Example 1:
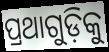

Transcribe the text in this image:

ପ୍ରଥାଗୁଡ଼ିକୁ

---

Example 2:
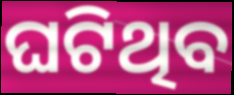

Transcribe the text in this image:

ଘଟିଥିବ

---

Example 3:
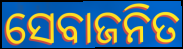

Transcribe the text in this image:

ସେବାଜନିତ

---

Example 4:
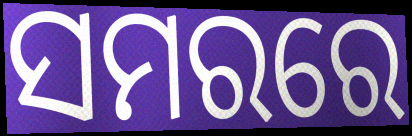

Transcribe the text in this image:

ସମରରେ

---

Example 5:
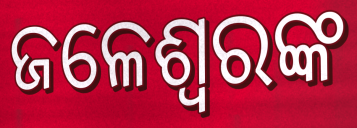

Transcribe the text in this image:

ଜଳେଶ୍ଵରଙ୍କ